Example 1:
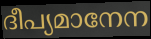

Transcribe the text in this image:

ദീപ്യമാനേന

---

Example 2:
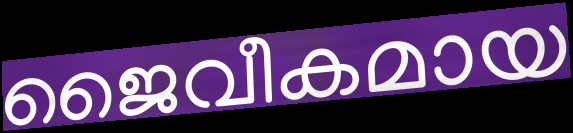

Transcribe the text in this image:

ജൈവീകമായ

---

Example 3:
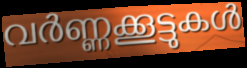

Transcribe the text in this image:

വർണ്ണക്കൂട്ടുകൾ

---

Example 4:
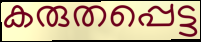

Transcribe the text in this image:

കരുതപ്പെട്ട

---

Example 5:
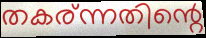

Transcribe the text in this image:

തകര്ന്നതിന്റെ